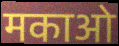
मकाओ